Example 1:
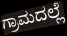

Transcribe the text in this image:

ಗ್ರಾಮದಲ್ಲೆ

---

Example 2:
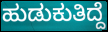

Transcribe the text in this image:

ಹುಡುಕುತಿದ್ದೆ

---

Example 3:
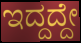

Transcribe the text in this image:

ಇದ್ದದ್ದೇ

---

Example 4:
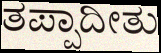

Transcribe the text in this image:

ತಪ್ಪಾದೀತು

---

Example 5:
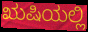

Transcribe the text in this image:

ಋಷಿಯಲ್ಲಿ